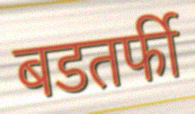
बडतर्फी